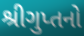
શ્રીગુપ્તનો